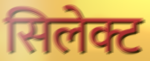
सिलेक्ट